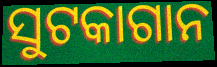
ସୁଟକାଗାନ